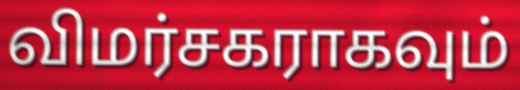
விமர்சகராகவும்